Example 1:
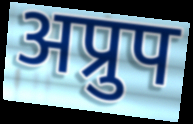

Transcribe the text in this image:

अप्रुप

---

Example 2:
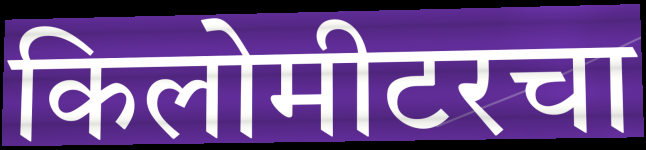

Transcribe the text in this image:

किलोमीटरचा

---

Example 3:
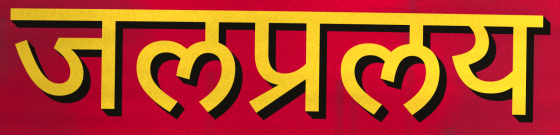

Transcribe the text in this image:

जलप्रलय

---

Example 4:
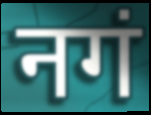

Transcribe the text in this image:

नगं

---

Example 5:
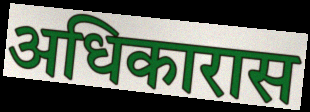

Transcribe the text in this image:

अधिकारास